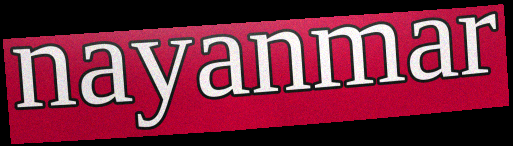
nayanmar